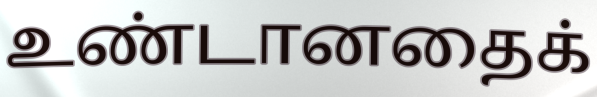
உண்டானதைக்